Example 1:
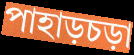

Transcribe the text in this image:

পাহাড়চড়া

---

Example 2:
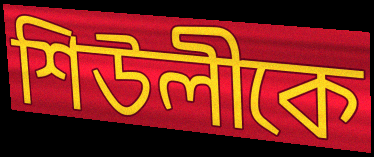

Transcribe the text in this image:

শিউলীকে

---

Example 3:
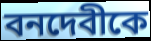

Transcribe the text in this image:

বনদেবীকে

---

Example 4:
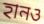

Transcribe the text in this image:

হানও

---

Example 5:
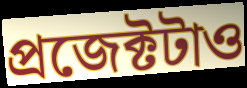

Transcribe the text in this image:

প্রজেক্টটাও